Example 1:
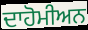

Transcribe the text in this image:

ਦਾਹੋਮੀਅਨ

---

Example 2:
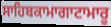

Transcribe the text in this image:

ਸਾਹਿਬਕਾਮਾਗਾਟਾਮਾਰੂ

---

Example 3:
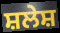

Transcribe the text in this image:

ਸ਼ਲੇਸ਼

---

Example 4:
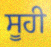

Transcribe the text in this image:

ਸੂਹੀ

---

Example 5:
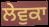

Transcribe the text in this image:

ਲੇਵੁਕਾ